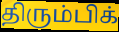
திரும்பிக்